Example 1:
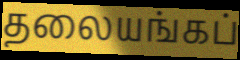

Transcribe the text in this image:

தலையங்கப்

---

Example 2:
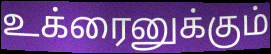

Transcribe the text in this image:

உக்ரைனுக்கும்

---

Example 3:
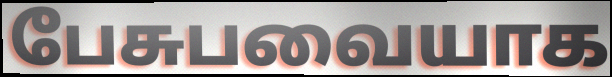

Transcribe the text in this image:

பேசுபவையாக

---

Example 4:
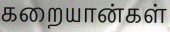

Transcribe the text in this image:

கறையான்கள்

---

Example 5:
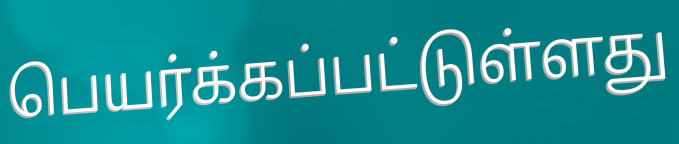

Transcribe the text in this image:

பெயர்க்கப்பட்டுள்ளது